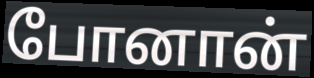
போனான்